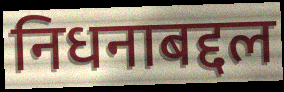
निधनाबद्दल